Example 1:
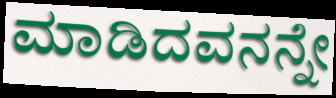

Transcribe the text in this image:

ಮಾಡಿದವನನ್ನೇ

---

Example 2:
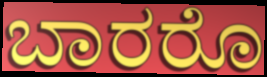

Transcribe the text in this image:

ಬಾರರೊ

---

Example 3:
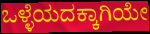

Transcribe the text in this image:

ಒಳ್ಳೆಯದಕ್ಕಾಗಿಯೇ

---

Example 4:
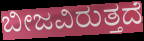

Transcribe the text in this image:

ಬೀಜವಿರುತ್ತದೆ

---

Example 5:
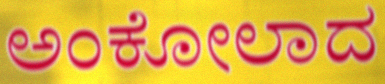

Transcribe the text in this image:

ಅಂಕೋಲಾದ